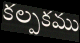
కల్పకము